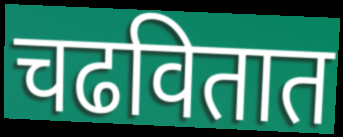
चढवितात